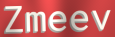
Zmeev